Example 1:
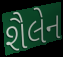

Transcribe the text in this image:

શૈલેન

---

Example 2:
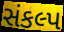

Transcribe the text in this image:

સંકલ્પ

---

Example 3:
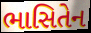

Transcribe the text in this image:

ભાસિતેન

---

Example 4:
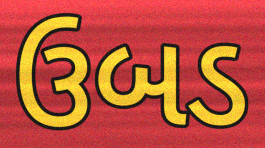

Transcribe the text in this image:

ઉબડ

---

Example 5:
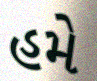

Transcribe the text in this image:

હમે